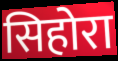
सिहोरा